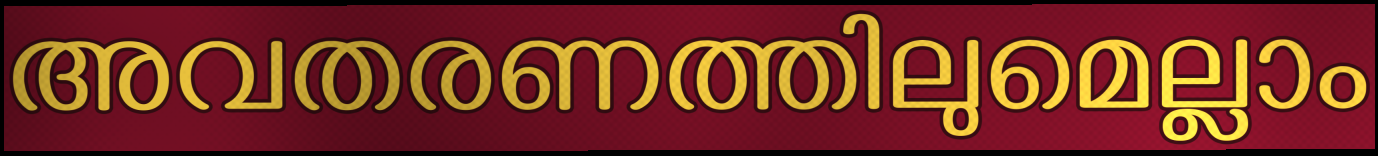
അവതരണത്തിലുമെല്ലാം